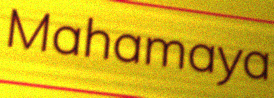
Mahamaya